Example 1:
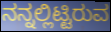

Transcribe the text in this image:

ನನ್ನಲ್ಲಿಟ್ಟಿರುವ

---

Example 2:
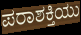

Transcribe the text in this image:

ಪರಾಶಕ್ತಿಯು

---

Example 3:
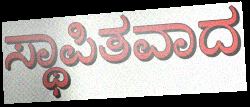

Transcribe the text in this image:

ಸ್ಥಾಪಿತವಾದ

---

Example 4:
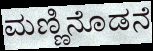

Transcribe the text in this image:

ಮಣ್ಣಿನೊಡನೆ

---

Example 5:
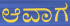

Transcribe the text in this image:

ಆವಾಗ